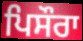
ਪਿਸੌਰਾ